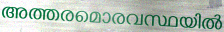
അത്തരമൊരവസ്ഥയിൽ